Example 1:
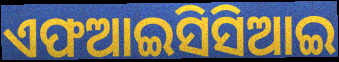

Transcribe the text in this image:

ଏଫଆଇସିସିଆଇ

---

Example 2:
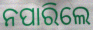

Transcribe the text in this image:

ନପାରିଲେ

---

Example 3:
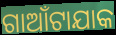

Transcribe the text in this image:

ଗାଆଁଟାଯାକ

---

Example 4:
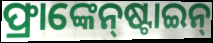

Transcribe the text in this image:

ଫ୍ରାଙ୍କେନ୍‌ଷ୍ଟାଇନ୍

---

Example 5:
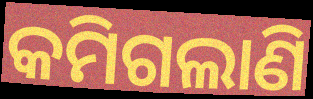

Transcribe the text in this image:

କମିଗଲାଣି